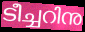
ടീച്ചറിനു